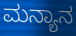
ಮನ್ಯಾನ